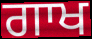
ਗਾਖ